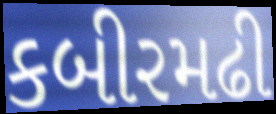
કબીરમઢી